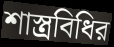
শাস্ত্রবিধির